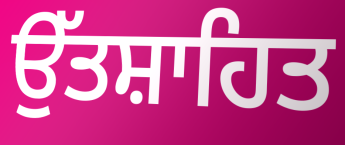
ਉੱਤਸ਼ਾਹਿਤ